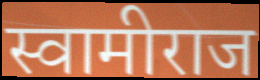
स्वामीराज